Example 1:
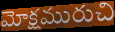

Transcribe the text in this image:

మోక్షమురుచి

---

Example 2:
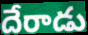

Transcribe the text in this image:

దేరాడు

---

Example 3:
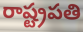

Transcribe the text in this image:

రాష్ట్రపతి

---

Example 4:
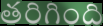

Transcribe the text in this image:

తరిగింది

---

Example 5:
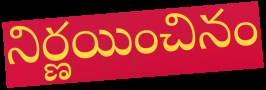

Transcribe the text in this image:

నిర్ణయించినం